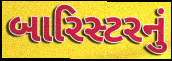
બારિસ્ટરનું